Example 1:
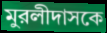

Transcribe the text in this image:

মুরলীদাসকে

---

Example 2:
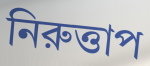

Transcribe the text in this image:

নিরুত্তাপ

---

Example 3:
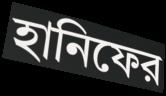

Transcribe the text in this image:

হানিফের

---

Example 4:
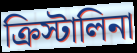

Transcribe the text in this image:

ক্রিস্টালিনা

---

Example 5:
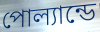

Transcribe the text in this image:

পোল্যান্ডে